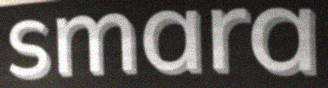
smara